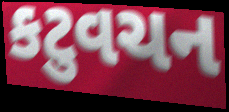
કટુવચન